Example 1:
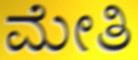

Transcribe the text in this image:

ಮೇತಿ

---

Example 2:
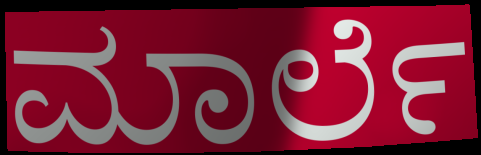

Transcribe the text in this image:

ಮಾರ್ಲೆ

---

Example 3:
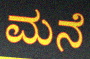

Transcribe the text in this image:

ಮನೆ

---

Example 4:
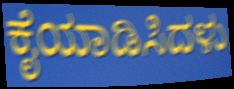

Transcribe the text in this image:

ಕೈಯಾಡಿಸಿದಳು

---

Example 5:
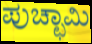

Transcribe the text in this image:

ಪುಚ್ಛಾಮಿ